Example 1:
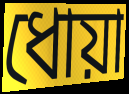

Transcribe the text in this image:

ধোয়া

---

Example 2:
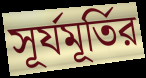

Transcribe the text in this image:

সূর্যমূর্তির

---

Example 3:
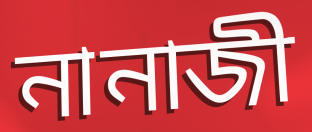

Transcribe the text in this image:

নানাজী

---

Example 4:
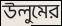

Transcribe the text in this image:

উলুমের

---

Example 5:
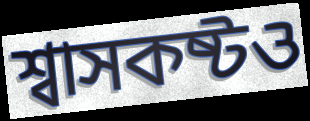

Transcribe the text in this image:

শ্বাসকষ্টও